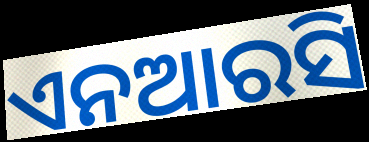
ଏନଆରସି